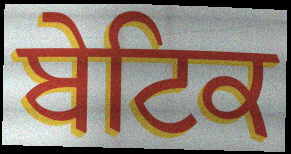
ਬੇਟਿਕ